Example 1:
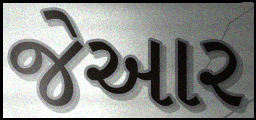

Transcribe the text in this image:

જેઆર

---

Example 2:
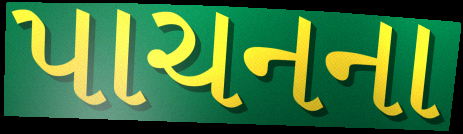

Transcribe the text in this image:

પાચનના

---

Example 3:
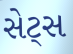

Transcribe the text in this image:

સેટ્સ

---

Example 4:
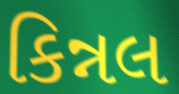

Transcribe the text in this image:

કિન્નલ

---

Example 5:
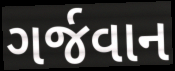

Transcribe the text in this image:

ગર્જવાન